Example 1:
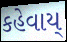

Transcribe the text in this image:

કહેવાય્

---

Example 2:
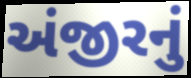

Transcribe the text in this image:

અંજીરનું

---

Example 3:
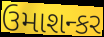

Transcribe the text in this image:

ઉમાશન્કર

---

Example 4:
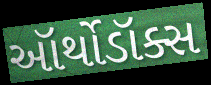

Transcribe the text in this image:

ઑર્થોડૉક્સ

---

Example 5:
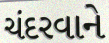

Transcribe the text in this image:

ચંદરવાને